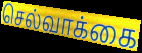
செல்வாக்கை